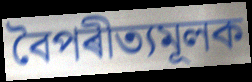
বৈপৰীত্যমূলক